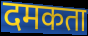
दमकता